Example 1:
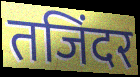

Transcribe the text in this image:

तजिंदर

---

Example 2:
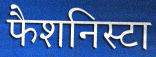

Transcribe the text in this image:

फैशनिस्टा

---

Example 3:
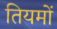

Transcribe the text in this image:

तियमों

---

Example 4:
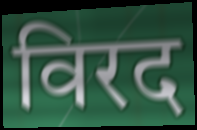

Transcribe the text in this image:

विरद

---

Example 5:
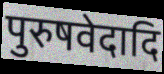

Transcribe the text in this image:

पुरुषवेदादि